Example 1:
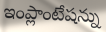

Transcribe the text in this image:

ఇంప్లాంటేషన్ను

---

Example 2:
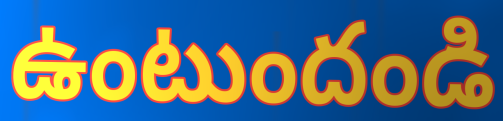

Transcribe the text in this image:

ఉంటుందండి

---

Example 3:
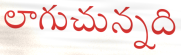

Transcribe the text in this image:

లాగుచున్నది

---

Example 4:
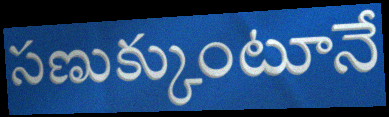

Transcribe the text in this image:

సణుక్కుంటూనే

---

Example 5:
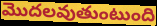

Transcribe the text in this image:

మొదలవుతుంటుంది